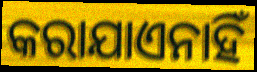
କରାଯାଏନାହିଁ